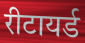
रीटायर्ड